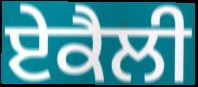
ਏਕੈਲੀ